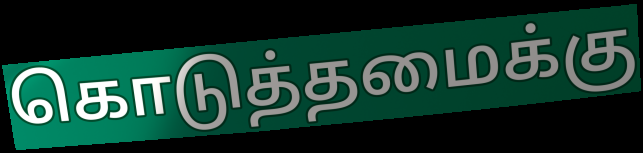
கொடுத்தமைக்கு